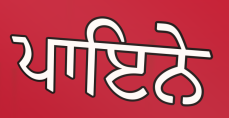
ਪਾਇਨੇ